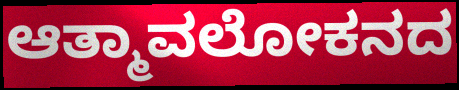
ಆತ್ಮಾವಲೋಕನದ